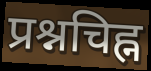
प्रश्नचिह्न